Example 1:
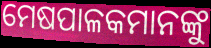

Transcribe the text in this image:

ମେଷପାଳକମାନଙ୍କୁ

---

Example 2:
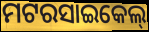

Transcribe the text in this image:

ମଟରସାଇକେଲ୍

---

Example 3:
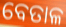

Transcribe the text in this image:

ବେତାଳ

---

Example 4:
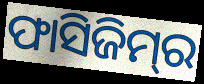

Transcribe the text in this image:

ଫାସିଜିମ୍‌ର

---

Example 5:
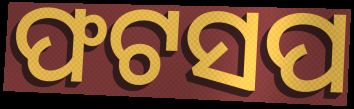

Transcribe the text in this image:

ଫଟସପ